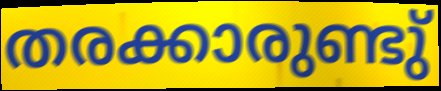
തരക്കാരുണ്ടു്